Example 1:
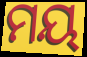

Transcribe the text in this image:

ମୟ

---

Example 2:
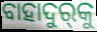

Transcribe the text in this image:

ବାହାଦୁର୍‌କୁ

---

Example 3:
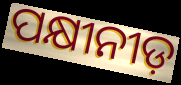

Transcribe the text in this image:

ପକ୍ଷୀନୀଡ଼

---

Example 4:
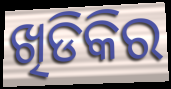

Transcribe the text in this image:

ଖିଡିକିର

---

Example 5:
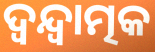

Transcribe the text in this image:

ଦ୍ଵନ୍ଦ୍ଵାତ୍ମକ